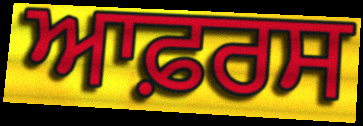
ਆਫ਼ਰਸ